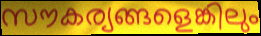
സൗകര്യങ്ങളെങ്കിലും